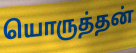
யொருத்தன்